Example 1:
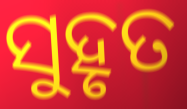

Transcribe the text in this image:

ସୁହୃତ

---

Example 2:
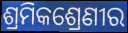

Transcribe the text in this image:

ଶ୍ରମିକଶ୍ରେଣୀର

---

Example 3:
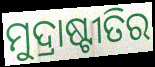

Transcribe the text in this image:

ମୁଦ୍ରାଷ୍ଟୀତିର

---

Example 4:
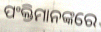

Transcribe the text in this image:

ପଂକ୍ତିମାନଙ୍କରେ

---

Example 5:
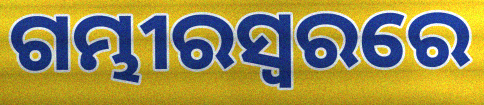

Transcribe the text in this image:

ଗମ୍ଭୀରସ୍ୱରରେ